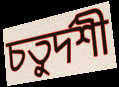
চতুর্দশী